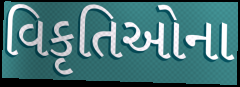
વિકૃતિઓના